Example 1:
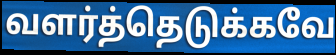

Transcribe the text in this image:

வளர்த்தெடுக்கவே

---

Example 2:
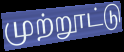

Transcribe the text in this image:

முற்றூட்டு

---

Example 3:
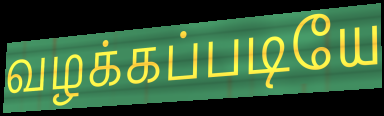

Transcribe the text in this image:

வழக்கப்படியே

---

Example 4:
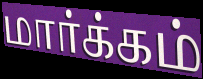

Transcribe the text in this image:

மார்க்கம்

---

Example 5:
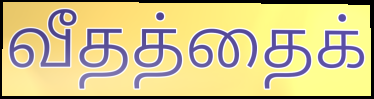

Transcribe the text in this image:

வீதத்தைக்